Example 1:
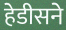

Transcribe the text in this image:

हेडीसने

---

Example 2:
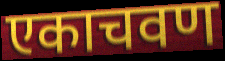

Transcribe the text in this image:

एकाचवण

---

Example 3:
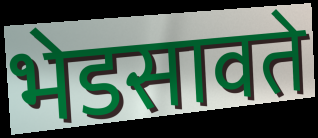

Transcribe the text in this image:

भेडसावते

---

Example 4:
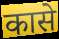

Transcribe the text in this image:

कासे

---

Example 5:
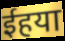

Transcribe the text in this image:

ईहया